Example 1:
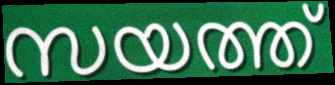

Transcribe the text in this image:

സയത്ത്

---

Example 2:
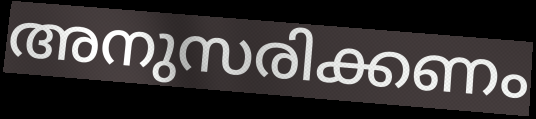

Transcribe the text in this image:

അനുസരിക്കണം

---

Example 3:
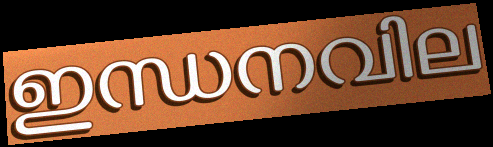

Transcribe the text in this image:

ഇന്ധനവില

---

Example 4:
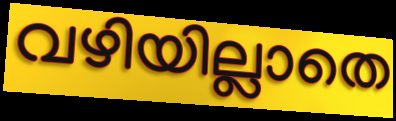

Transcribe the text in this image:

വഴിയില്ലാതെ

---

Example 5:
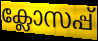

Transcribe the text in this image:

ക്ലോസപ്പ്